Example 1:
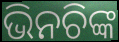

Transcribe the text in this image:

ଭିନଚିଙ୍କ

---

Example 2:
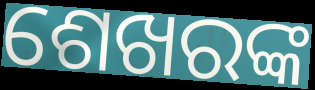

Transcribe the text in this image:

ଶେଖରଙ୍କ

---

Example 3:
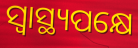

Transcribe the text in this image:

ସ୍ଵାସ୍ଥ୍ୟପକ୍ଷେ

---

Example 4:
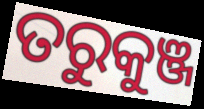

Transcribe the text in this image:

ତରୁକୁଞ୍ଜ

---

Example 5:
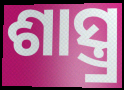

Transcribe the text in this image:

ଶାସ୍ତ୍ର୍ର